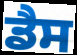
ਡੈਸ